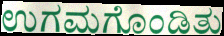
ಉಗಮಗೊಂಡಿತು